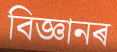
বিজ্ঞানৰ